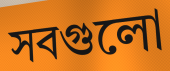
সবগুলো